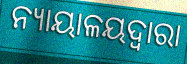
ନ୍ୟାୟାଳୟଦ୍ୱାରା